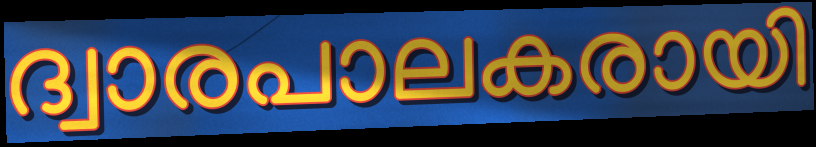
ദ്വാരപാലകരായി